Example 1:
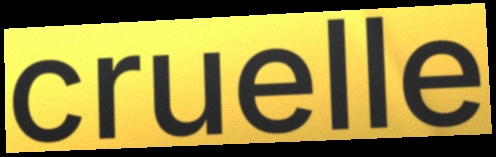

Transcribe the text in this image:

cruelle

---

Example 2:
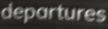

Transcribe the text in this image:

departures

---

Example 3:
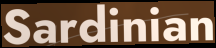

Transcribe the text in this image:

Sardinian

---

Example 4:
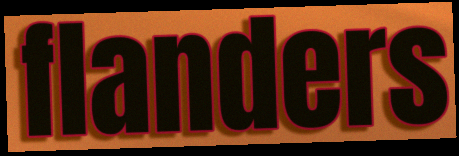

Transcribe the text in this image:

flanders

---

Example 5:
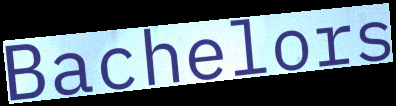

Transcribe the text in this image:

Bachelors